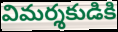
విమర్శకుడికి